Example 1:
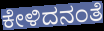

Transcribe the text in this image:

ಕೇಳಿದನಂತೆ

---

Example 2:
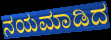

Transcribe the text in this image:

ನಯಮಾಡಿದ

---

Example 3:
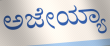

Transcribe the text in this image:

ಅಜೇಯ್ಯಾ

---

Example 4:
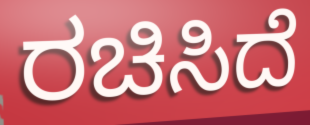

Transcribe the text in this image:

ರಚಿಸಿದೆ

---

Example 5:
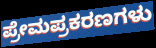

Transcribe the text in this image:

ಪ್ರೇಮಪ್ರಕರಣಗಳು